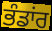
ਭੰਡਾਂਰ